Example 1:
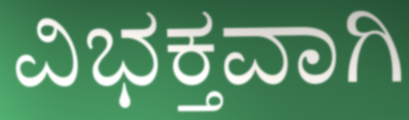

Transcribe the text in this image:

ವಿಭಕ್ತವಾಗಿ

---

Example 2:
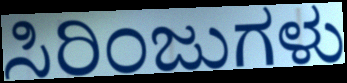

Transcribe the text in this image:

ಸಿರಿಂಜುಗಳು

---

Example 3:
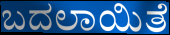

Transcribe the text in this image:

ಬದಲಾಯಿತೆ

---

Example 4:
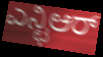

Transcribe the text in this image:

ಎನ್ಟಿಆರ್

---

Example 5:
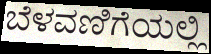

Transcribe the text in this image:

ಬೆಳವಣಿಗೆಯಲ್ಲಿ